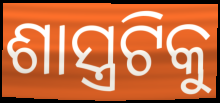
ଶାସ୍ତ୍ରଟିକୁ